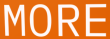
MORE